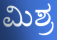
ಮಿಶ್ರ